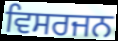
ਵਿਸਰਜਨ